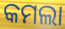
କମଲା